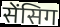
सेंसिग